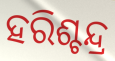
ହରିଶ୍ଚନ୍ଦ୍ର